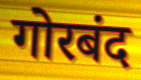
गोरबंद